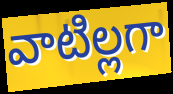
వాటిల్లగా